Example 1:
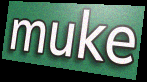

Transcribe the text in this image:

muke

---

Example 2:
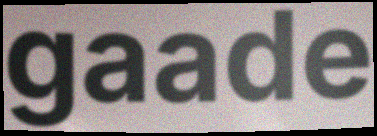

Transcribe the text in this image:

gaade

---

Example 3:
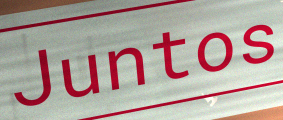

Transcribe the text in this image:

Juntos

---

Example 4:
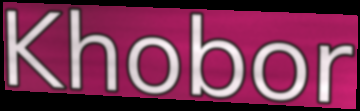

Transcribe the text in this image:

Khobor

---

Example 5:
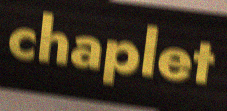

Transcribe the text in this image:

chaplet